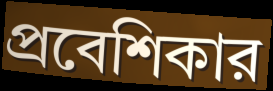
প্রবেশিকার